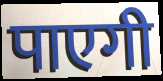
पाएगी